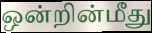
ஒன்றின்மீது